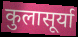
कुलासूर्या